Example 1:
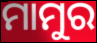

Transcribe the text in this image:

ମାମୁର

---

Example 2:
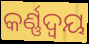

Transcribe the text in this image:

କର୍ଣ୍ଣଦ୍ୱୟ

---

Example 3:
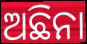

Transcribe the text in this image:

ଅଛିନା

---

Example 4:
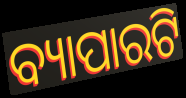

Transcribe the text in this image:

ବ୍ୟାପାରଟି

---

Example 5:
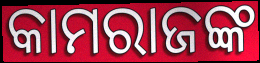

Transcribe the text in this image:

କାମରାଜଙ୍କ